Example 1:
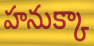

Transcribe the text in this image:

హనుక్కా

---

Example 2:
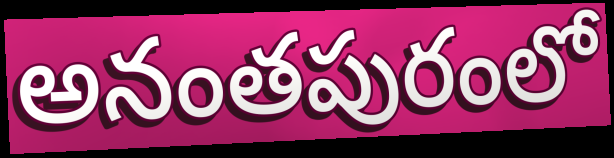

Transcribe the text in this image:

అనంతపురంలో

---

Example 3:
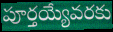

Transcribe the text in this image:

పూర్తయ్యేవరకు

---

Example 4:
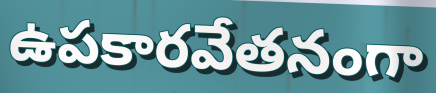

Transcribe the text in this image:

ఉపకారవేతనంగా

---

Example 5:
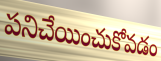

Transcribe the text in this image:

పనిచేయించుకోవడం